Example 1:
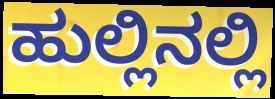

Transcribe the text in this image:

ಹುಲ್ಲಿನಲ್ಲಿ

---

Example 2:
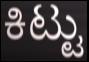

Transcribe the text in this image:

ಕಿಟ್ಟು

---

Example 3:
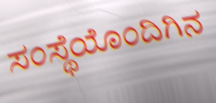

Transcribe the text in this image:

ಸಂಸ್ಥೆಯೊಂದಿಗಿನ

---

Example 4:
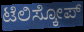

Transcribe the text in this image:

ಟೆಲಿಸ್ಕೋಪ್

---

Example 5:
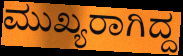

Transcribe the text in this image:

ಮುಖ್ಯರಾಗಿದ್ದ